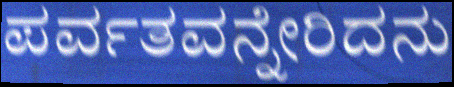
ಪರ್ವತವನ್ನೇರಿದನು